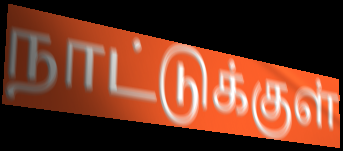
நாட்டுக்குள்